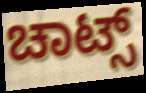
ಚಾಟ್ಸ್